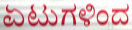
ಏಟುಗಳಿಂದ